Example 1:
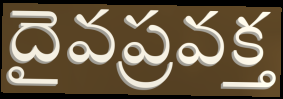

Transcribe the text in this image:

దైవప్రవక్త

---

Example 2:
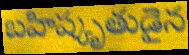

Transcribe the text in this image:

బహిష్కృతుడైన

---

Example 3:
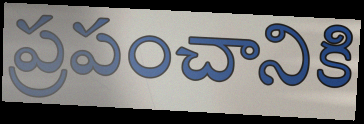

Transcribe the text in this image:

ప్రపంచానికి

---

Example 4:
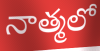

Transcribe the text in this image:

నాత్మలో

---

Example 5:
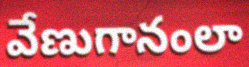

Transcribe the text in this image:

వేణుగానంలా